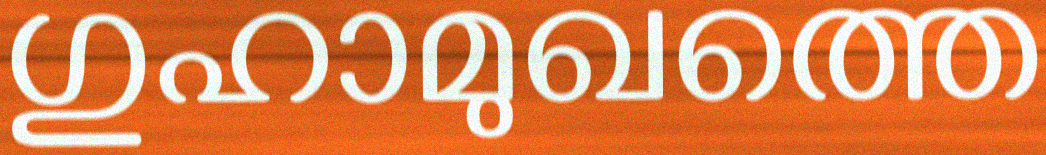
ഗുഹാമുഖത്തെ